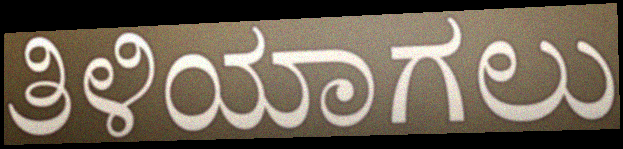
ತಿಳಿಯಾಗಲು